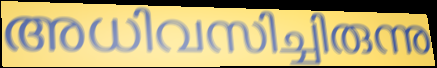
അധിവസിച്ചിരുന്നു